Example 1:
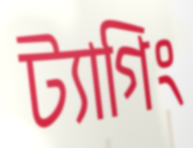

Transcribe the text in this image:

ট্যাগিং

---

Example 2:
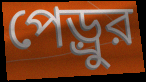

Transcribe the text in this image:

পেড়্রুর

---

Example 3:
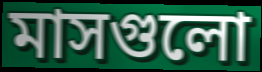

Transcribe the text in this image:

মাসগুলো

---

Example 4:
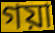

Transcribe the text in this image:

গয়া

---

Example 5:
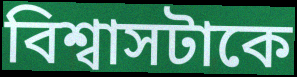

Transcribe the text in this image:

বিশ্বাসটাকে